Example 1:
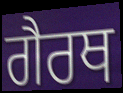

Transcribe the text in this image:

ਗੈਰਥ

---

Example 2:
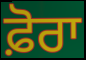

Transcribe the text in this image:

ਫ਼ੋਰਾ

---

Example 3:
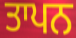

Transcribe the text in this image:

ਤਾਪਨ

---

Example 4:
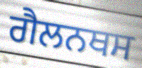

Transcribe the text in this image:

ਗੈਲਨਥਸ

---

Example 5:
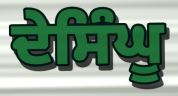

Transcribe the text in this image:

ਦੇਸਿੰਘੂ